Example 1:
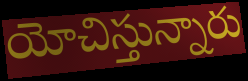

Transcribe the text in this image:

యోచిస్తున్నారు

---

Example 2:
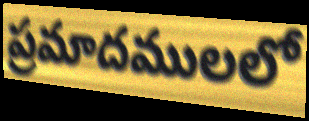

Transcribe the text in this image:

ప్రమాదములలో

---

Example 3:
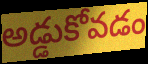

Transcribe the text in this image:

అడ్డుకోవడం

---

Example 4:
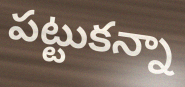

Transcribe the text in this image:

పట్టుకన్నా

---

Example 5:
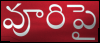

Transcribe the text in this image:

వూరిపై